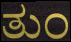
ತುಂ